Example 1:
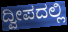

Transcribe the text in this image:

ದ್ವೀಪದಲ್ಲಿ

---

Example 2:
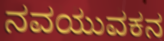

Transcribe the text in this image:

ನವಯುವಕನ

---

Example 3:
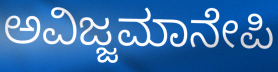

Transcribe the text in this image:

ಅವಿಜ್ಜಮಾನೇಪಿ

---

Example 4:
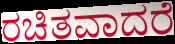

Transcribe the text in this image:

ರಚಿತವಾದರೆ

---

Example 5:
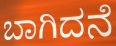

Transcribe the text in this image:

ಬಾಗಿದನೆ